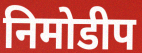
निमोडीप